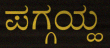
ಪಗ್ಗಯ್ಹ